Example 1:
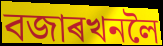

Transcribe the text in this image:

বজাৰখনলৈ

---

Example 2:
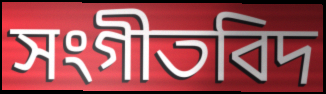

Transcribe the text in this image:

সংগীতবিদ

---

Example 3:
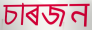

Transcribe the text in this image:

চাৰজন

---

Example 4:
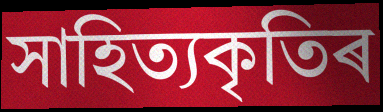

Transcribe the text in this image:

সাহিত্য়কৃতিৰ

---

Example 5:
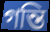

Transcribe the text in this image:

গন্তি